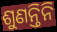
ଶୁଣନ୍ତିନି